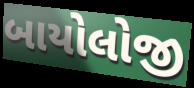
બાયોલોજી